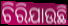
ଚିରିଯାଉଛି